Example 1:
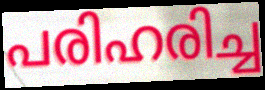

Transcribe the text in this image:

പരിഹരിച്ച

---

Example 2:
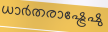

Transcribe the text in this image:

ധാർതരാഷ്ട്രേഷു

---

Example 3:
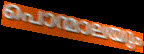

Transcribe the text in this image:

പൊന്മാലയും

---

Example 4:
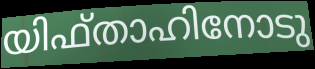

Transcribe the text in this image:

യിഫ്താഹിനോടു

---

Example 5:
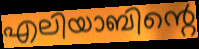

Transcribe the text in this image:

എലിയാബിന്റെ